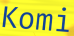
Komi